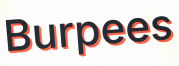
Burpees